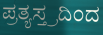
ಪ್ರತ್ಯಸ್ತ್ರದಿಂದ